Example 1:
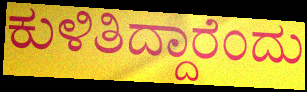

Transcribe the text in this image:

ಕುಳಿತಿದ್ದಾರೆಂದು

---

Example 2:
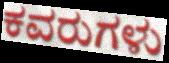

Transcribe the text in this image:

ಕವರುಗಳು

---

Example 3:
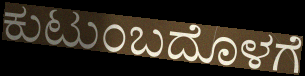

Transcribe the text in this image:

ಕುಟುಂಬದೊಳಗೆ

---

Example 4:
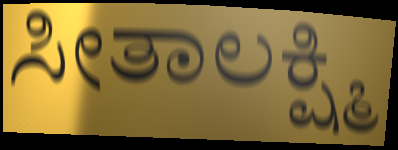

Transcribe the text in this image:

ಸೀತಾಲಕ್ಷ್ಮಿ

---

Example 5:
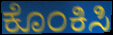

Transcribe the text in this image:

ಕೊಂಕಿಸಿ